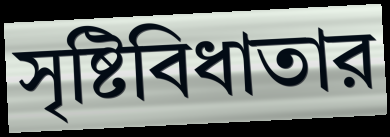
সৃষ্টিবিধাতার